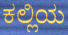
ಕಲ್ಲಿಯ